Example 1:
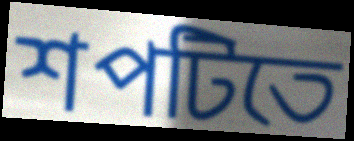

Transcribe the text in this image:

শপটিতে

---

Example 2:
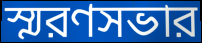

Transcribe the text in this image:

স্মরণসভার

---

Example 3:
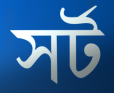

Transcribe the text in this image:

সর্ট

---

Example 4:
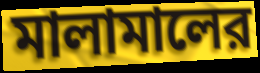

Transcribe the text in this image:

মালামালের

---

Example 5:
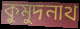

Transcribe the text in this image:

কুমুদনাথ